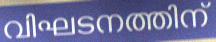
വിഘടനത്തിന്